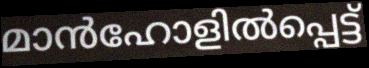
മാൻഹോളിൽപ്പെട്ട്